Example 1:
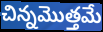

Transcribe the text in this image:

చిన్నమొత్తమే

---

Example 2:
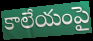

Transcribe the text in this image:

కాలేయంపై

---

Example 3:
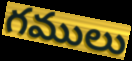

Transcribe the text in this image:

గములు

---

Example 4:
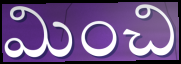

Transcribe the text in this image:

మించి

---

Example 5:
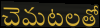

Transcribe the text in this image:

చెమటలతో